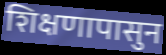
शिक्षणापासुन